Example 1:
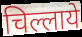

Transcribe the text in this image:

चिल्लाये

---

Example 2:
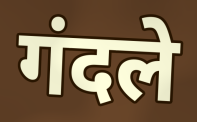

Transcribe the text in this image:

गंदले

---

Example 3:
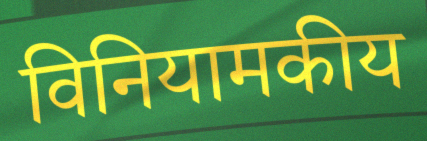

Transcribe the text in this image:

विनियामकीय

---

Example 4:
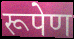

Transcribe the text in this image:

रूपेण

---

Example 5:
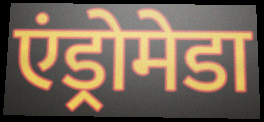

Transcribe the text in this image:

एंड्रोमेडा